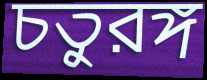
চতুরঙ্গ